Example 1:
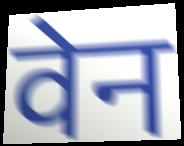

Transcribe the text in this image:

वेन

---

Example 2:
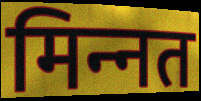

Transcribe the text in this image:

मिन्नत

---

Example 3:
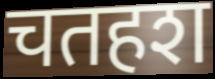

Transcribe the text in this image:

चतहश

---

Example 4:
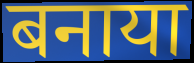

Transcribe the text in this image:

बनाया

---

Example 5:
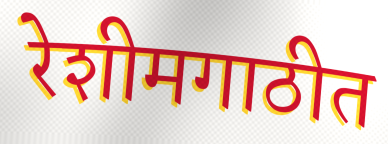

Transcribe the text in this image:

रेशीमगाठीत